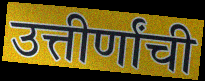
उत्तीर्णांची